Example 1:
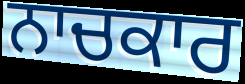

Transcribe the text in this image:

ਨਾਚਕਾਰ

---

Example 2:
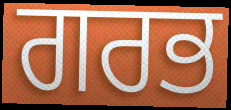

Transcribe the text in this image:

ਗਰਭ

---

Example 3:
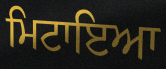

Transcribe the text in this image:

ਮਿਟਾਇਆ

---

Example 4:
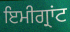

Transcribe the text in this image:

ਇਮੀਗ੍ਰਾਂਟ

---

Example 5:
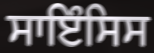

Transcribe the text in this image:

ਸਾਇੰਸਿਸ